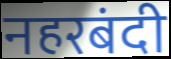
नहरबंदी